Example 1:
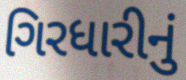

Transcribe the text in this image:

ગિરધારીનું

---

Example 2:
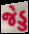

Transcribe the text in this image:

જેડુ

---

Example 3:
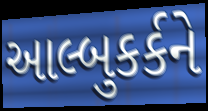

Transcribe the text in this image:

આલ્બુકર્કને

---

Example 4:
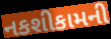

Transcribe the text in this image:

નકશીકામની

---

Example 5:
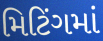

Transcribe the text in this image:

મિટિંગમાં